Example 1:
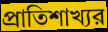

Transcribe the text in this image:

প্রাতিশাখ্যর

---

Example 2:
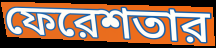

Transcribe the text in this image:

ফেরেশতার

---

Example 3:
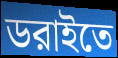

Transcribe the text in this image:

ডরাইতে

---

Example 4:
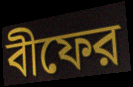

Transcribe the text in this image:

বীফের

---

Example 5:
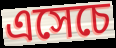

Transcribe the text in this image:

এসেচে